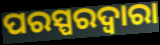
ପରସ୍ପରଦ୍ୱାରା